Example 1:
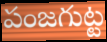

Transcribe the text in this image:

పంజగుట్ట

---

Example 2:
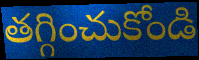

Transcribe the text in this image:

తగ్గించుకోండి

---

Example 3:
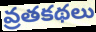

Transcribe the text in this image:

వ్రతకథలు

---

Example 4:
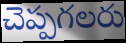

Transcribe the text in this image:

చెప్పగలరు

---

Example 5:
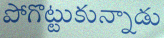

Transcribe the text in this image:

పోగొట్టుకున్నాడు